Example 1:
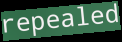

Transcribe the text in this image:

repealed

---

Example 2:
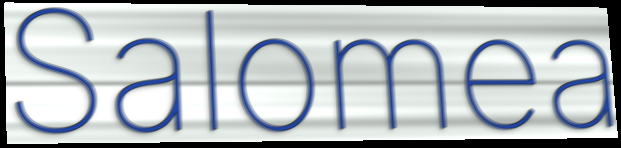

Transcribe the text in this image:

Salomea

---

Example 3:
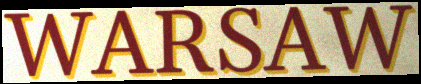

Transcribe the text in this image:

WARSAW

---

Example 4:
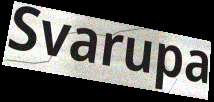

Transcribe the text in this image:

Svarupa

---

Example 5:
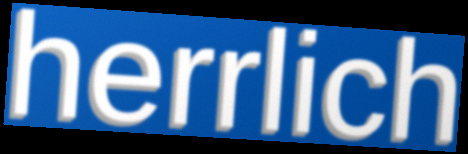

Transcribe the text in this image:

herrlich